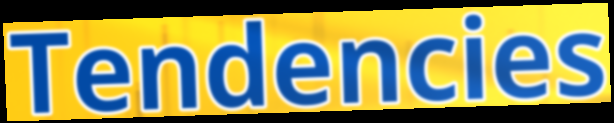
Tendencies